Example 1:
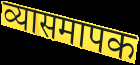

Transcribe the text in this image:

व्यासमापक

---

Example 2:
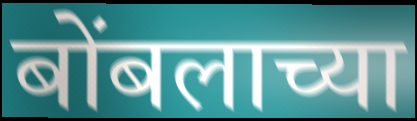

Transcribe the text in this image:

बोंबलाच्या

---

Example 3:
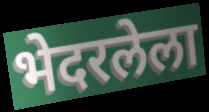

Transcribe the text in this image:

भेदरलेला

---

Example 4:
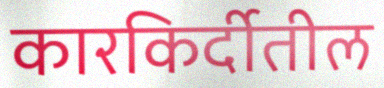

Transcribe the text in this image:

कारकिर्दीतील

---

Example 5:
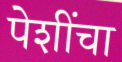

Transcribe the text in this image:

पेशींचा